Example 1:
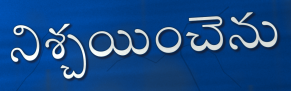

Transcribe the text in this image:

నిశ్చయించెను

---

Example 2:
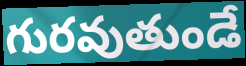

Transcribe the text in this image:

గురవుతుండే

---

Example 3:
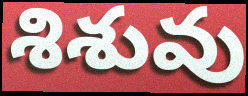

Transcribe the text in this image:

శిశువు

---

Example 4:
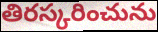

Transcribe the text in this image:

తిరస్కరించును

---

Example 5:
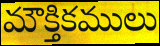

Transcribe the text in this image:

మౌక్తికములు